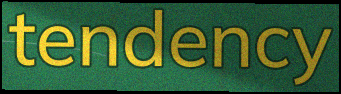
tendency